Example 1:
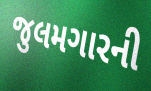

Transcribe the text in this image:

જુલમગારની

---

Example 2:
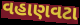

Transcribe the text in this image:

વહાણવટા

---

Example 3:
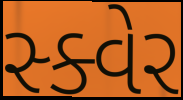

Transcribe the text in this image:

સ્ક્વેર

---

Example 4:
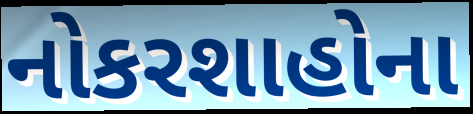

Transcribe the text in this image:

નોકરશાહોના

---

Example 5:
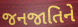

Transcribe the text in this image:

જનજાતિને